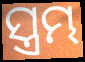
ସ୍ତ୍ରମ୍ଭ